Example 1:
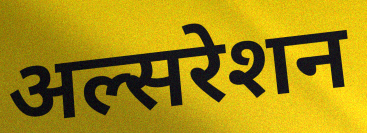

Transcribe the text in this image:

अल्सरेशन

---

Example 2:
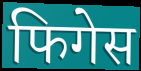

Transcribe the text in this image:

फिगेस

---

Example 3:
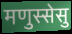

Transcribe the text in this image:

मणुस्सेसु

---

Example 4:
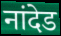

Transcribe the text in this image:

नांदेड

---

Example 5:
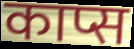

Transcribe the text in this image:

काप्स